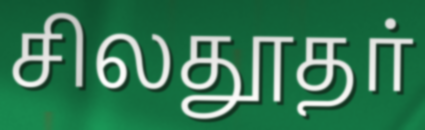
சிலதூதர்